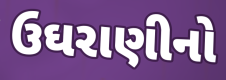
ઉઘરાણીનો